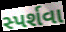
સ્પર્શવા